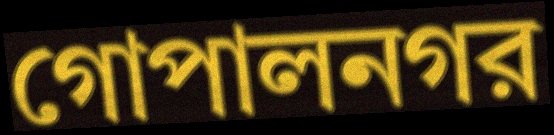
গোপালনগর